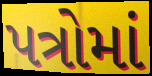
પત્રોમાં